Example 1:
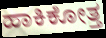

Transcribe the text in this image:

ಹಾಕಿಕೋತ್ತ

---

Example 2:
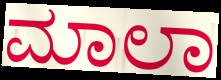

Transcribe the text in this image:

ಮಾಲಾ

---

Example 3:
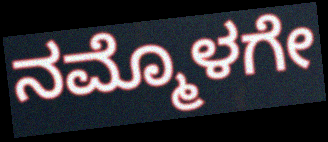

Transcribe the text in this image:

ನಮ್ಮೊಳಗೇ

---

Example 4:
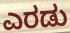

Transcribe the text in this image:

ಎರಡು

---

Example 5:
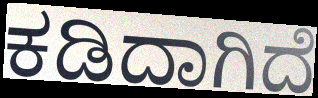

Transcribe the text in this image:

ಕಡಿದಾಗಿದೆ